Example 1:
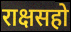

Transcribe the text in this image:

राक्षसहो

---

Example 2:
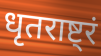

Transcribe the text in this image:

धृतराष्ट्रं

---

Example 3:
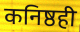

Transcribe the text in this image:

कनिष्ठही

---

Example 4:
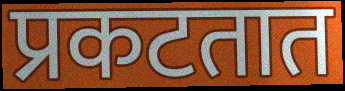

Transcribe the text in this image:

प्रकटतात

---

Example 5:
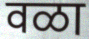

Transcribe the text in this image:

वळा